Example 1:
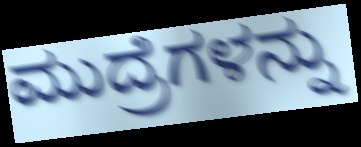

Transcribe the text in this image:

ಮುದ್ರೆಗಳನ್ನು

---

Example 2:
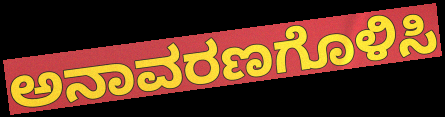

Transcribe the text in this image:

ಅನಾವರಣಗೊಳಿಸಿ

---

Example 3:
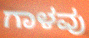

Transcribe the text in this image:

ಗಾಳವು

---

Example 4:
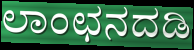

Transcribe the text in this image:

ಲಾಂಛನದಡಿ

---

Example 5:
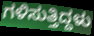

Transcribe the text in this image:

ಗಳಿಸುತ್ತಿದ್ದಳು